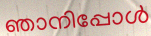
ഞാനിപ്പോൾ